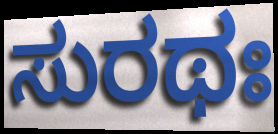
ಸುರಥಃ